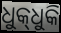
ଧୁକ୍‌ଧୁକି